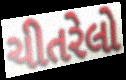
ચીતરેલો